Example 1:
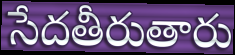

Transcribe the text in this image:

సేదతీరుతారు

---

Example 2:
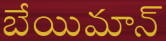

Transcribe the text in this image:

బేయిమాన్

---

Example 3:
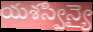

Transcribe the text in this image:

యశస్విన్యై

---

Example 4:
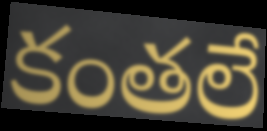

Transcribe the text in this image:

కంతలే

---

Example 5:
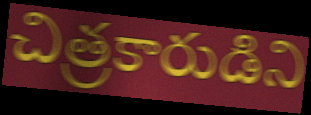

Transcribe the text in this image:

చిత్రకారుడిని